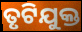
ତୃଟିଯୁକ୍ତ